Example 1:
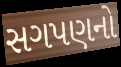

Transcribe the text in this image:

સગપણનો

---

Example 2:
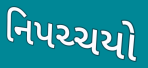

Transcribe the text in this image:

નિપચ્ચયો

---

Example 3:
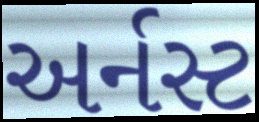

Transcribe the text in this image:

અર્નસ્ટ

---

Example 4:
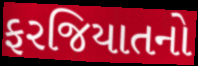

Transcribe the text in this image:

ફરજિયાતનો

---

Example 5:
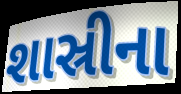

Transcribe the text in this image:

શાસ્રીના